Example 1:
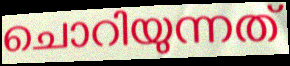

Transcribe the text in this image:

ചൊറിയുന്നത്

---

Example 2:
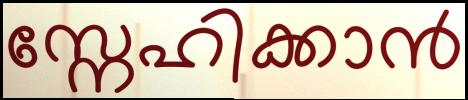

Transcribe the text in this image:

സ്നേഹിക്കാൻ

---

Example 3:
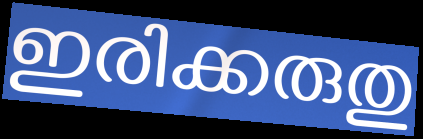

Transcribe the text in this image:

ഇരിക്കരുതു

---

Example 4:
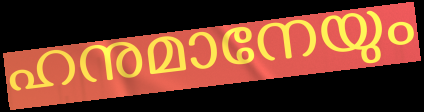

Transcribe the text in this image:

ഹനുമാനേയും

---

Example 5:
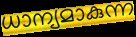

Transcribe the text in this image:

ധാന്യമാകുന്ന